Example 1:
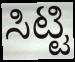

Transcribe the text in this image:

ಸಿಟ್ಟಿ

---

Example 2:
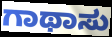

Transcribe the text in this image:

ಗಾಥಾಸು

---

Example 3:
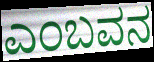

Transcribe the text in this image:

ಎಂಬವನ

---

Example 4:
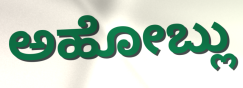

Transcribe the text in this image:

ಅಹೋಬ್ಲು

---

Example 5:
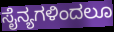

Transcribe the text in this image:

ಸೈನ್ಯಗಳಿಂದಲೂ